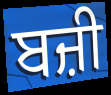
ਬਜ਼ੀ